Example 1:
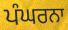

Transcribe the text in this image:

ਪੰਘਰਨਾ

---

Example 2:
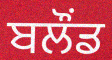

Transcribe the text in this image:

ਬਲੌਂਡ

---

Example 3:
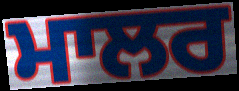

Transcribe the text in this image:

ਮਾਲਰ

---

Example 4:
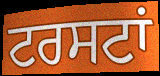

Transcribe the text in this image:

ਟਰਸਟਾਂ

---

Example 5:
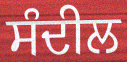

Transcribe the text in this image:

ਸੰਦੀਲ